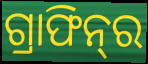
ଗ୍ରାଫିନ୍‌ର